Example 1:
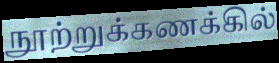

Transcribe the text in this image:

நூற்றுக்கணக்கில்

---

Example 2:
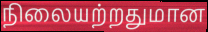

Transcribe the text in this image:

நிலையற்றதுமான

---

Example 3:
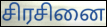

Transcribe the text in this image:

சிரசினை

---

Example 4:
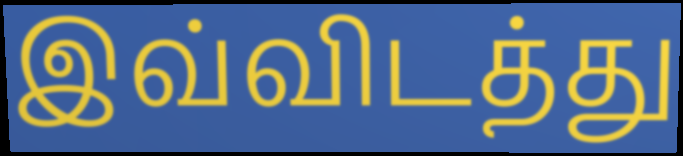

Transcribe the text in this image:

இவ்விடத்து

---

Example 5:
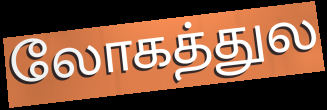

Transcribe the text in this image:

லோகத்துல